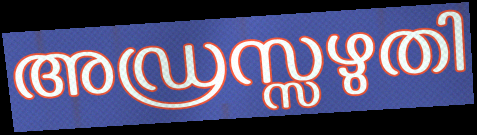
അഡ്രസ്സഴുതി